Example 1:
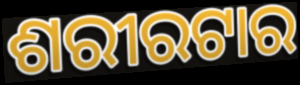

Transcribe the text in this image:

ଶରୀରଟାର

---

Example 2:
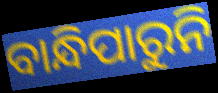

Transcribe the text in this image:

ବାନ୍ଧିପାରୁନି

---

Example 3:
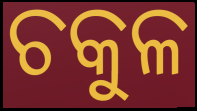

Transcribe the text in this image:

ଚକୁଳ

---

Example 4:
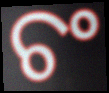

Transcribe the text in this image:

ଚଂ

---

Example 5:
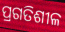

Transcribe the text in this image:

ପ୍ରଗତିଶୀଳ